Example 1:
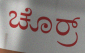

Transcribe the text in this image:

ಚೊರ್ರ್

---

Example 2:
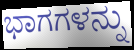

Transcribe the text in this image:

ಭಾಗಗಳನ್ನು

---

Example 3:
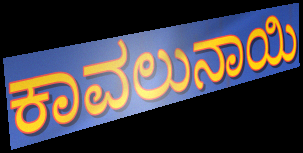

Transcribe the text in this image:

ಕಾವಲುನಾಯಿ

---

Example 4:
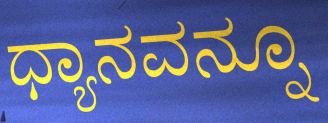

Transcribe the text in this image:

ಧ್ಯಾನವನ್ನೂ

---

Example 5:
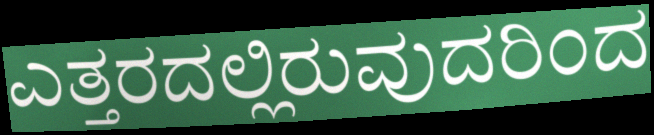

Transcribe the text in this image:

ಎತ್ತರದಲ್ಲಿರುವುದರಿಂದ